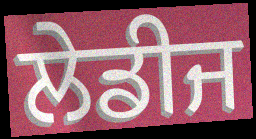
ਲੇਡੀਜ